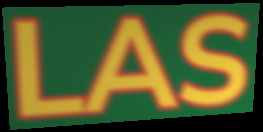
LAS